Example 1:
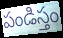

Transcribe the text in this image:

పండిస్తం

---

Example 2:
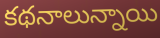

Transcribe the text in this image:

కథనాలున్నాయి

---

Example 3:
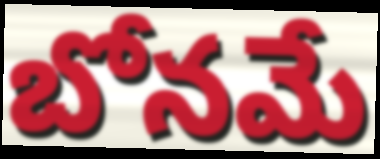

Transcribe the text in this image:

బోనమే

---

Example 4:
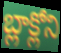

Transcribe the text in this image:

బ్లాక్లోని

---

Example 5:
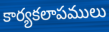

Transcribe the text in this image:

కార్యకలాపములు